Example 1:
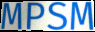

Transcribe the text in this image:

MPSM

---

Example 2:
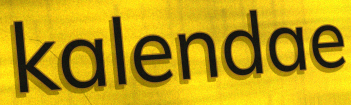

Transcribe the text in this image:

kalendae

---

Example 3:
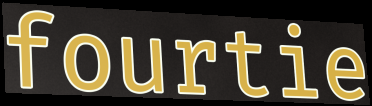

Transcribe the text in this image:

fourtie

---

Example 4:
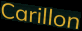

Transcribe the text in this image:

Carillon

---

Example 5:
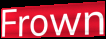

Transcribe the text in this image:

Frown